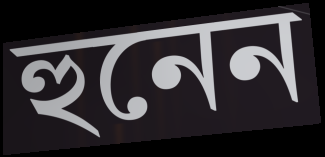
হুনেন